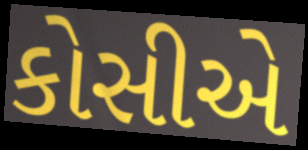
કોસીએ